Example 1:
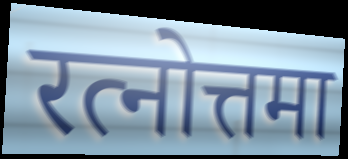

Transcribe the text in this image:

रत्नोत्तमा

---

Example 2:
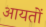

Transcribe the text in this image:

आयतों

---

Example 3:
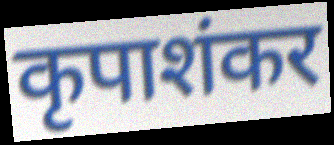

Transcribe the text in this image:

कृपाशंकर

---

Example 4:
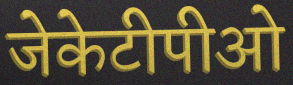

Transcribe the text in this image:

जेकेटीपीओ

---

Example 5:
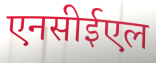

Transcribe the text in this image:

एनसीईएल